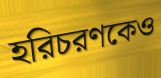
হরিচরণকেও